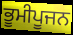
ਭੂਮੀਪੂਜਨ